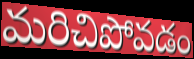
మరిచిపోవడం